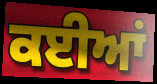
ਕਈਆਂ